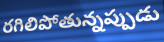
రగిలిపోతున్నప్పుడు